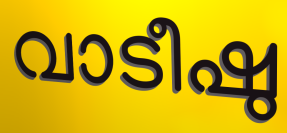
വാടീഷു